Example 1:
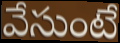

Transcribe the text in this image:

వేసుంటే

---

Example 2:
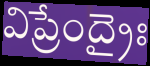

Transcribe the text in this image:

విప్రేంద్రైః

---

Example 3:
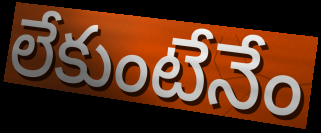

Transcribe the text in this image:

లేకుంటేనేం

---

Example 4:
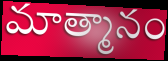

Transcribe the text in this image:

మాత్మానం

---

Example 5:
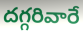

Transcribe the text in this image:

దగ్గరివారే